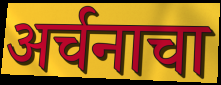
अर्चनाचा